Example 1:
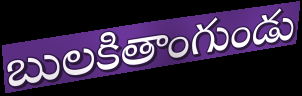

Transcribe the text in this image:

బులకితాంగుండు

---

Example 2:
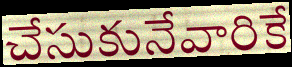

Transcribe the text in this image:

చేసుకునేవారికే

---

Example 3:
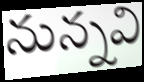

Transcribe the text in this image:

నున్నవి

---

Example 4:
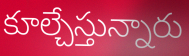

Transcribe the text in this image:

కూల్చేస్తున్నారు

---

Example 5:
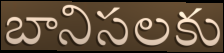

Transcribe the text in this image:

బానిసలకు